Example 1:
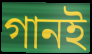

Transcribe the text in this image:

গানই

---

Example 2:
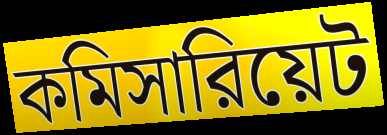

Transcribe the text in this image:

কমিসারিয়েট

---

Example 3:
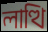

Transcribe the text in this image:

লাত্থি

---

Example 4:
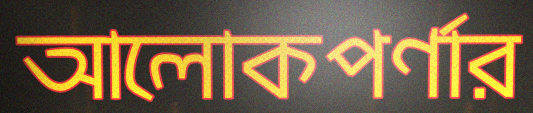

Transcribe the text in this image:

আলোকপর্ণার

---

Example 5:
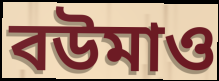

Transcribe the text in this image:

বউমাও